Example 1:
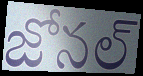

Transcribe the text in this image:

జోనల్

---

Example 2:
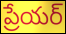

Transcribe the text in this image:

ప్రేయర్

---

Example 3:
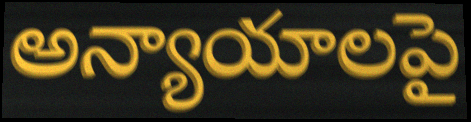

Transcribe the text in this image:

అన్యాయాలపై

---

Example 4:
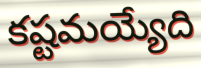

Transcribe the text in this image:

కష్టమయ్యేది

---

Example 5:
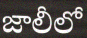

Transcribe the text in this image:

జాలీలో